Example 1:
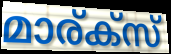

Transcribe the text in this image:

മാര്ക്സ്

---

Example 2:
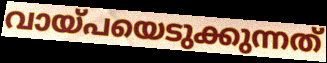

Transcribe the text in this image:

വായ്പയെടുക്കുന്നത്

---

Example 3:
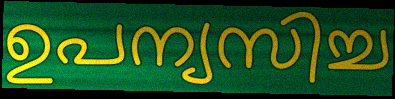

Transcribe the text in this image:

ഉപന്യസിച്ച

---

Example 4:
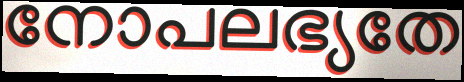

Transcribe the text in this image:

നോപലഭ്യതേ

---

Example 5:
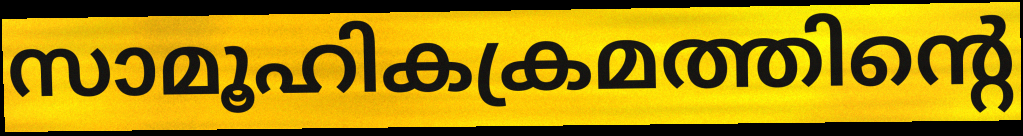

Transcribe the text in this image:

സാമൂഹികക്രമത്തിന്റെ